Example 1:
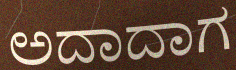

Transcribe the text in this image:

ಅದಾದಾಗ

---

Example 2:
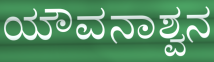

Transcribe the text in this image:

ಯೌವನಾಶ್ವನ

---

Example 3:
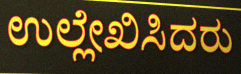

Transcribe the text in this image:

ಉಲ್ಲೇಖಿಸಿದರು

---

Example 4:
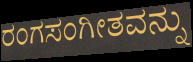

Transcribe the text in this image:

ರಂಗಸಂಗೀತವನ್ನು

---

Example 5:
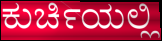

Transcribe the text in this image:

ಕುರ್ಚಿಯಲ್ಲಿ